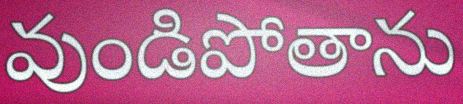
వుండిపోతాను